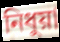
নিধুয়া